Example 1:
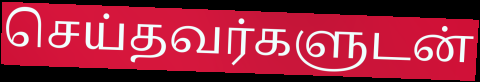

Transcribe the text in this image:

செய்தவர்களுடன்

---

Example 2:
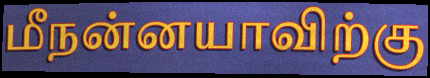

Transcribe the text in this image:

மீநன்னயாவிற்கு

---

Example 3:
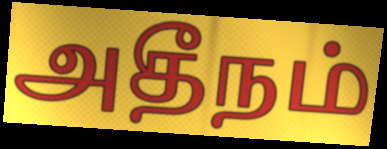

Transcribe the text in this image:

அதீநம்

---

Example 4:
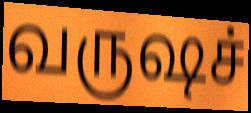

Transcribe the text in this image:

வருஷச்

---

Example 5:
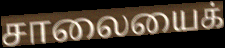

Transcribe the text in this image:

சாலையைக்